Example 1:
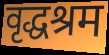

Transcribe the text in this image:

वृद्धश्रम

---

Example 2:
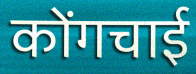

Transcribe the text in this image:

कोंगचाई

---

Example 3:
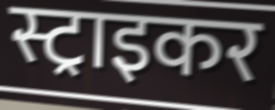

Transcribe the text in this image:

स्ट्राइकर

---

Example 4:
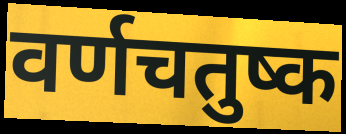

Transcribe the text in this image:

वर्णचतुष्क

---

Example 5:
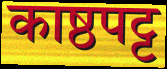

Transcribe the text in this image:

काष्ठपट्ट